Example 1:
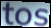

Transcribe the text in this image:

tos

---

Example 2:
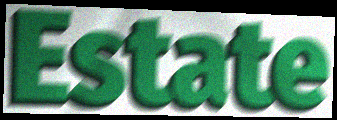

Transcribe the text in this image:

Estate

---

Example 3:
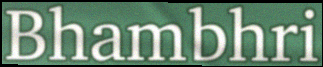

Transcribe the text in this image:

Bhambhri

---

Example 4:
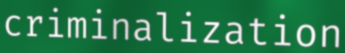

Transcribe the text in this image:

criminalization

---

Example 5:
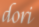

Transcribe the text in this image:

dori